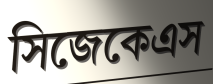
সিজেকেএস